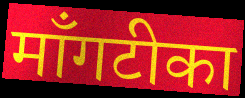
माँगटीका